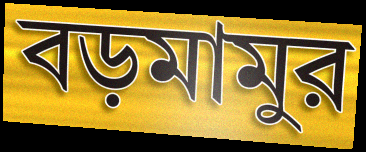
বড়মামুর